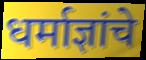
धर्माज्ञांचे